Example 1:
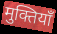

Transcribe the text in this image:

मुक्तियाँ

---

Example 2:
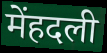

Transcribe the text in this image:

मेंहदली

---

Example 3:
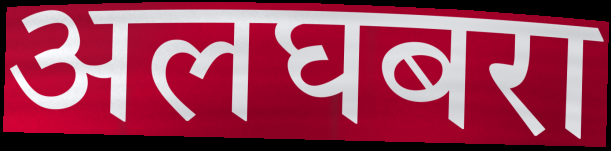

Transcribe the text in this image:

अलघबरा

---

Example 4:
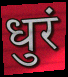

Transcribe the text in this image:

धुरं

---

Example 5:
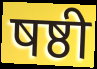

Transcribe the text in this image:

षष्ठी